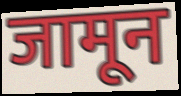
जामून